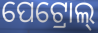
ପେଟ୍ରୋଲ୍